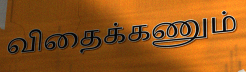
விதைக்கணும்